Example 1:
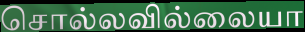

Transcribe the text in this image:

சொல்லவில்லையா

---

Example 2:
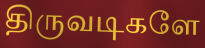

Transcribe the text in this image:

திருவடிகளே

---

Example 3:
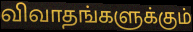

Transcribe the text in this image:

விவாதங்களுக்கும்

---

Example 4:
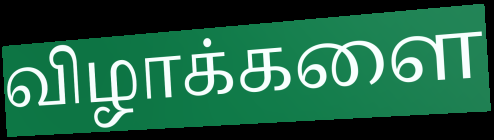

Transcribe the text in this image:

விழாக்களை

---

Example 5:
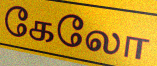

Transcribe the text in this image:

கேலோ